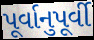
પૂર્વાનુપૂર્વી